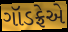
ગૉડફ્રેએ